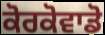
ਕੋਰਕੋਵਾਡੋ